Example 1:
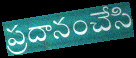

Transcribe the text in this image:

ప్రదానంచేసి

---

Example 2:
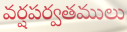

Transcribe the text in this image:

వర్షపర్వతములు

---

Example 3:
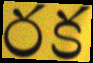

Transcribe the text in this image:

రక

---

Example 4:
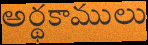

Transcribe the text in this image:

అర్థకాములు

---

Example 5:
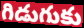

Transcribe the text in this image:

గిడుగుకు